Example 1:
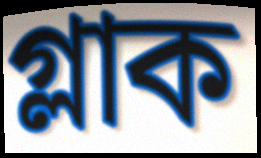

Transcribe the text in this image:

গ্লাক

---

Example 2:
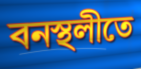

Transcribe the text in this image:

বনস্থলীতে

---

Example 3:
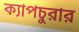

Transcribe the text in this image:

ক্যাপচুরার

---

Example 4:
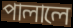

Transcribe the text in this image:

পালালে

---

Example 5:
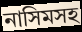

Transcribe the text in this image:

নাসিমসহ